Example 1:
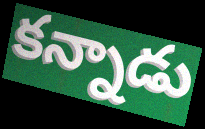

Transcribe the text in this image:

కన్నాడు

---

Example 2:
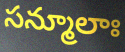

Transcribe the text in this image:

సన్మూలాః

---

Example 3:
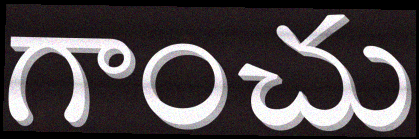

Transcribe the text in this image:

గాంచు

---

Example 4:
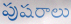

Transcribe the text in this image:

పుషరాలు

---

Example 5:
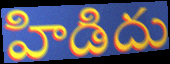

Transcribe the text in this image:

హిడిదు